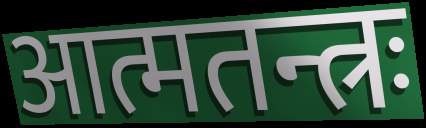
आत्मतन्त्रः